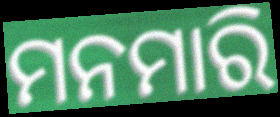
ମନମାରି